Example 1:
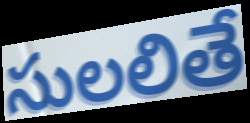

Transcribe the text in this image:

సులలితే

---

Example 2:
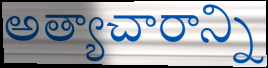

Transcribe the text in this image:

అత్యాచారాన్ని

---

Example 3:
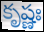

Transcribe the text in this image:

కృష్ణః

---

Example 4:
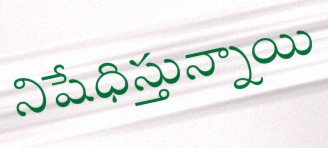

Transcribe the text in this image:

నిషేధిస్తున్నాయి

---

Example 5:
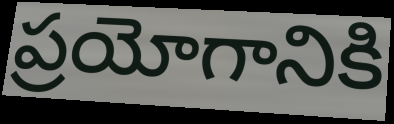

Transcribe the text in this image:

ప్రయోగానికి